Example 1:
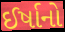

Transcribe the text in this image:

ઈર્ષાનો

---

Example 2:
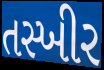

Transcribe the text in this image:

તસ્ખીર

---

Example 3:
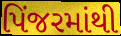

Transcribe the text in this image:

પિંજરમાંથી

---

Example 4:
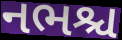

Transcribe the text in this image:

નભશ્ચ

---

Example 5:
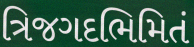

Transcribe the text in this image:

ત્રિજગદભિમિતં